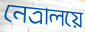
নেত্রালয়ে